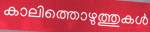
കാലിത്തൊഴുത്തുകൾ